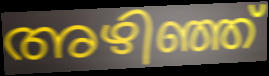
അഴിഞ്ഞ്